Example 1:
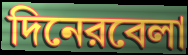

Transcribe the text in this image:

দিনেরবেলা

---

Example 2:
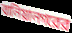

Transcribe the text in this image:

বানিয়ানগরের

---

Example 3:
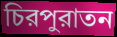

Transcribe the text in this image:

চিরপুরাতন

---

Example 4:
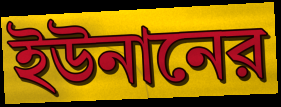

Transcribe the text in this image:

ইউনানের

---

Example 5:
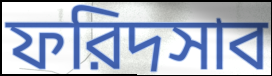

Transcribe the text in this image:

ফরিদসাব